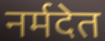
नर्मदेत